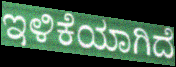
ಇಳಿಕೆಯಾಗಿದೆ